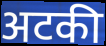
अटकी